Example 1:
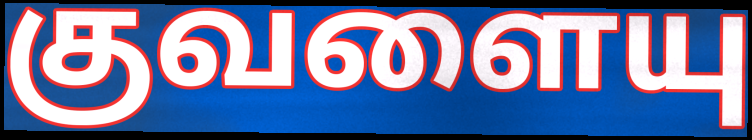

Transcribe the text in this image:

குவளையு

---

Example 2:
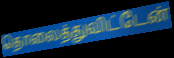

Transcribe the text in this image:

தொலைத்துவிட்டேன்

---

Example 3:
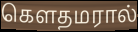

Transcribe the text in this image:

கௌதமரால்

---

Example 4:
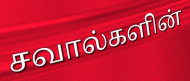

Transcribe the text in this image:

சவால்களின்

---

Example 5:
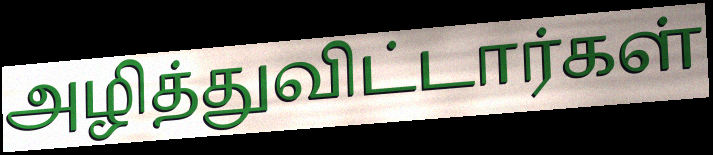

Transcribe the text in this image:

அழித்துவிட்டார்கள்